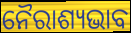
ନୈରାଶ୍ୟଭାବ